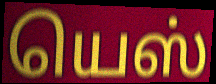
யெஸ்